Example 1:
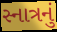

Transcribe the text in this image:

સ્નાત્રનું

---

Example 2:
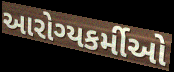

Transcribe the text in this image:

આરોગ્યકર્મીઓ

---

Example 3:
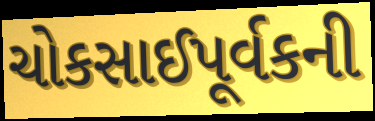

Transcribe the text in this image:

ચોકસાઈપૂર્વકની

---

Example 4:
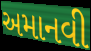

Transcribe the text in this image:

અમાનવી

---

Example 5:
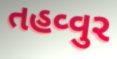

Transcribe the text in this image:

તહવ્વુર